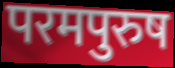
परमपुरुष